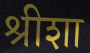
श्रीशा